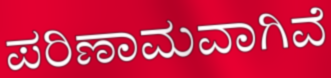
ಪರಿಣಾಮವಾಗಿವೆ